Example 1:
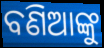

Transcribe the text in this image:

ବଣିଆଙ୍କୁ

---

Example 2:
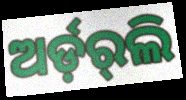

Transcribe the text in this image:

ଅର୍ଡ଼ର୍‌ଲି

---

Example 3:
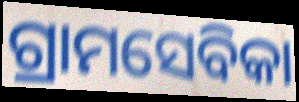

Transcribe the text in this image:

ଗ୍ରାମସେବିକା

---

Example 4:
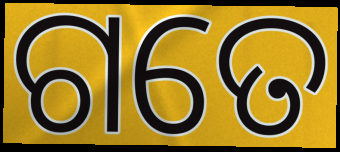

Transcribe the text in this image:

ଗତେ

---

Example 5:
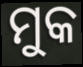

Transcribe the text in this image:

ମୁକ